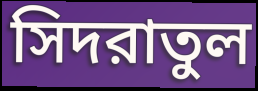
সিদরাতুল